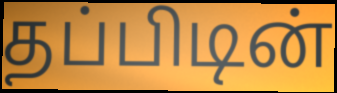
தப்பிடின்